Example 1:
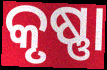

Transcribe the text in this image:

କୃଷ୍ଣା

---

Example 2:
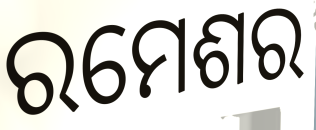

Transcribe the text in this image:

ରମେଶର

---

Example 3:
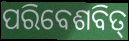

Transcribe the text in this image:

ପରିବେଶବିତ୍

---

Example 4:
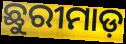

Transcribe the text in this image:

ଛୁରୀମାଡ଼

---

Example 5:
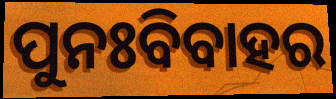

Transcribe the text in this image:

ପୁନଃବିବାହର